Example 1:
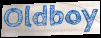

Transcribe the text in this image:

Oldboy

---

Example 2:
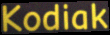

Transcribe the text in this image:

Kodiak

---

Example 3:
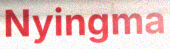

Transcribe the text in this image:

Nyingma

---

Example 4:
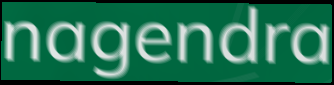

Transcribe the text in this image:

nagendra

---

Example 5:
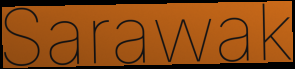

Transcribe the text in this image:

Sarawak